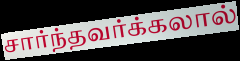
சார்ந்தவர்க்கலால்